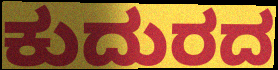
ಕುದುರದ